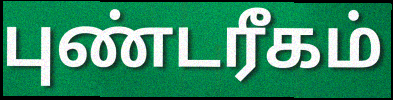
புண்டரீகம்